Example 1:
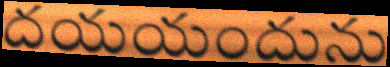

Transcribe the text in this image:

దయయందును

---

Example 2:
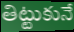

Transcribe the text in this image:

తిట్టుకునే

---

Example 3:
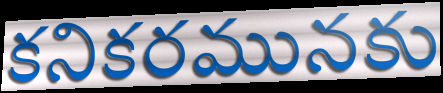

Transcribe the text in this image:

కనికరమునకు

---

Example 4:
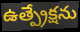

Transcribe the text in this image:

ఉత్ప్రేక్షను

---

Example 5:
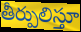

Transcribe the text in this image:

తీర్పులిస్తూ